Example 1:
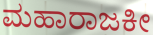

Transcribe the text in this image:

ಮಹಾರಾಜಕೀ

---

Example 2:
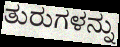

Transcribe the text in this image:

ತುರುಗಳನ್ನು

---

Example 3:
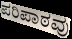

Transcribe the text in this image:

ಪರಿಪಾಠವು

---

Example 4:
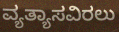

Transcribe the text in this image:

ವ್ಯತ್ಯಾಸವಿರಲು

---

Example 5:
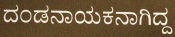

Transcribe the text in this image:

ದಂಡನಾಯಕನಾಗಿದ್ದ